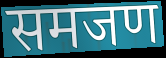
समजण